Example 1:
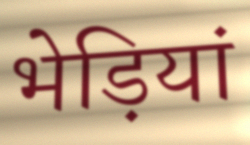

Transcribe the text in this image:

भेड़ियां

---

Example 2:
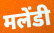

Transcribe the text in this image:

मलेंडी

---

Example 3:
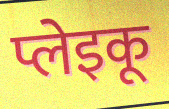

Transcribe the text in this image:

प्लेइकू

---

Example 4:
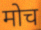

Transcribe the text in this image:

मोच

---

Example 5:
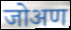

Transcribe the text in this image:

जोअण